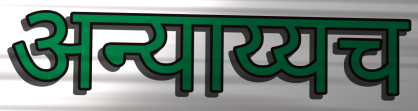
अन्याय्यच